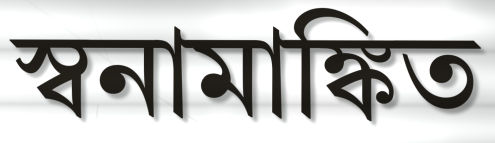
স্বনামাঙ্কিত